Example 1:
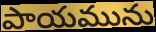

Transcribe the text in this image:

పాయమును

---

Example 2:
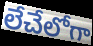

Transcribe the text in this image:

లేచేలోగా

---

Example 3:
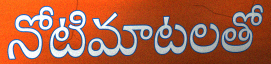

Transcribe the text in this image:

నోటిమాటలతో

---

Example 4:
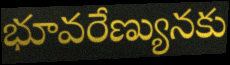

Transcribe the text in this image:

భూవరేణ్యునకు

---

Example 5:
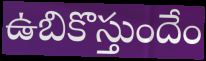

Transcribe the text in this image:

ఉబికొస్తుందేం